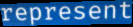
represent